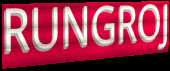
RUNGROJ